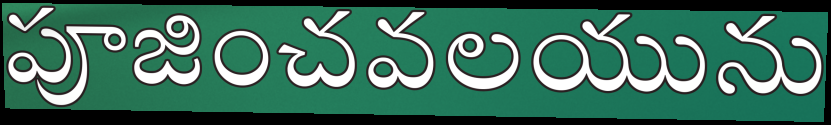
పూజించవలయును